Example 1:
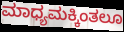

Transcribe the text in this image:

ಮಾಧ್ಯಮಕ್ಕಿಂತಲೂ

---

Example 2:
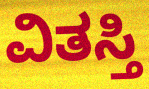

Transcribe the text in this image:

ವಿತಸ್ತಿ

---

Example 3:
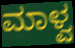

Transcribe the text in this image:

ಮಾಳ್ವ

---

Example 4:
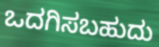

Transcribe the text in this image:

ಒದಗಿಸಬಹುದು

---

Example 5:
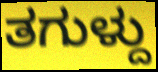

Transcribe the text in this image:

ತಗುಳ್ದು